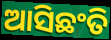
ଆସିଛଂତି